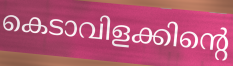
കെടാവിളക്കിന്റെ